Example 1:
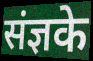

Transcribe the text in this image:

संज्ञके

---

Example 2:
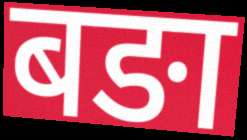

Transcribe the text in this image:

बङा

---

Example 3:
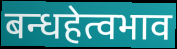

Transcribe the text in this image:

बन्धहेत्वभाव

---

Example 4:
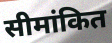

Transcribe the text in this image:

सीमांकित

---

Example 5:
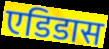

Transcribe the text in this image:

एडिडास